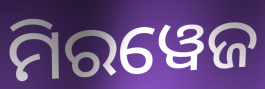
ମିରୱେଜ